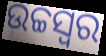
ଉଚ୍ଚସ୍ବର